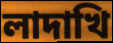
লাদাখি